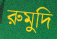
রুমুদি